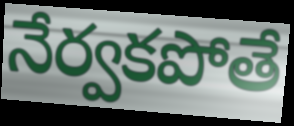
నేర్వకపోతే